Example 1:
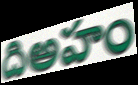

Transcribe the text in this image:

దిఅహం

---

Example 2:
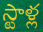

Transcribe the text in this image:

స్టాళ్ల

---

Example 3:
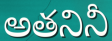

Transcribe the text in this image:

అతనినీ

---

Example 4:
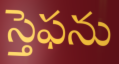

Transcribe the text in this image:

స్తెఫను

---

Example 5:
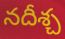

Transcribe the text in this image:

నదీశ్చ